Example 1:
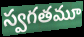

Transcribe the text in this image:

స్వగతమూ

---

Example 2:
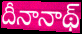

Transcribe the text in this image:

దీనానాథ్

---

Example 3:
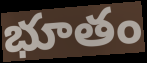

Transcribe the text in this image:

భూతం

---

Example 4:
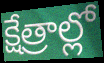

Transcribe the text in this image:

క్షేత్రాల్లో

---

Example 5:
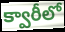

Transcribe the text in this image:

క్వారీలో